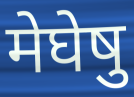
मेघेषु